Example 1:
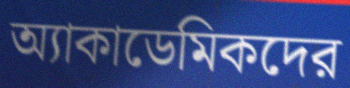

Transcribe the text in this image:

অ্যাকাডেমিকদের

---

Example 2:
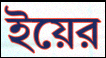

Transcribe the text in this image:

ইয়ের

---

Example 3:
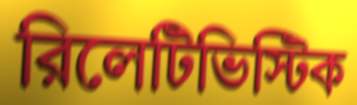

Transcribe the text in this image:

রিলেটিভিস্টিক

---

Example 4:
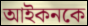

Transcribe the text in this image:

আইকনকে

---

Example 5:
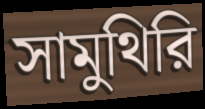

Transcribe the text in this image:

সামুথিরি